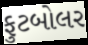
ફુટબોલર